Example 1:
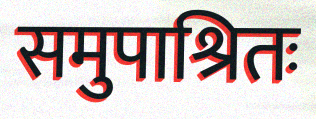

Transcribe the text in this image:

समुपाश्रितः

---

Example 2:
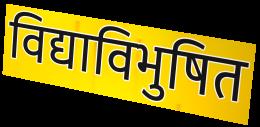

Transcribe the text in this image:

विद्याविभुषित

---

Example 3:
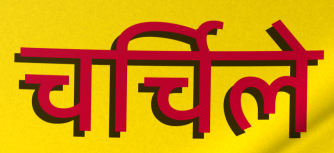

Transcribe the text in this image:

चर्चिले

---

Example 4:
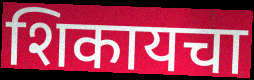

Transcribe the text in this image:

शिकायचा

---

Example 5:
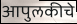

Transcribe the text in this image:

आपुलकीचे